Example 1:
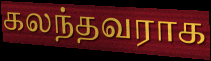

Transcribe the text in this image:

கலந்தவராக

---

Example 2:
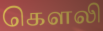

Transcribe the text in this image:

கௌலி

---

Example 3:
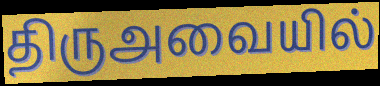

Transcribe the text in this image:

திருஅவையில்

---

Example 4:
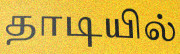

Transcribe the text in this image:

தாடியில்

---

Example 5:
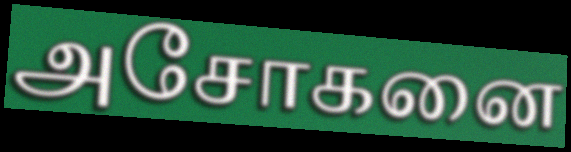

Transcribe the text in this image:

அசோகனை